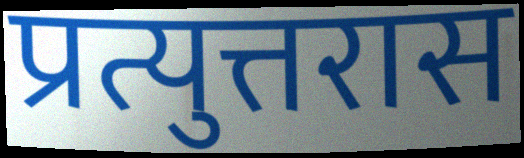
प्रत्युत्तरास